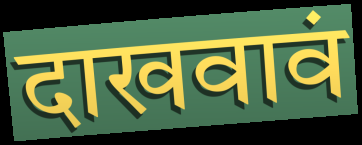
दाखवावं